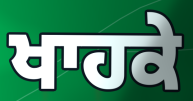
ਖਾਹਕੇ